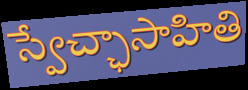
స్వేచ్ఛాసాహితి